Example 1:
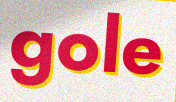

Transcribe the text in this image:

gole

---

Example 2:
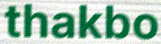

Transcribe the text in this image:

thakbo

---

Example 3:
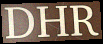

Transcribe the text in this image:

DHR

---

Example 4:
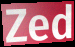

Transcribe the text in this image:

Zed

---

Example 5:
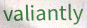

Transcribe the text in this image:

valiantly